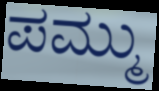
ಪಮ್ಮು